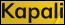
Kapali